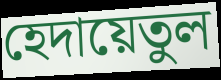
হেদায়েতুল